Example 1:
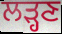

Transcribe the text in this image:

ਲੜ੍ਹਣ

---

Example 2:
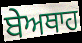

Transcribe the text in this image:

ਬੇਅਥਾਹ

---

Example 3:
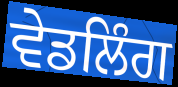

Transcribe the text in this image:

ਵੇਡਲਿੰਗ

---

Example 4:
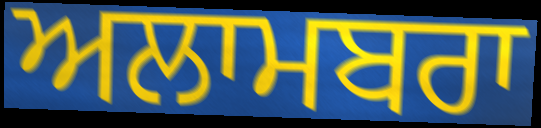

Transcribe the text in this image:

ਅਲਾਮਬਰਾ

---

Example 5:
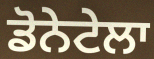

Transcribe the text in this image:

ਡੋਨੇਟੇਲਾ